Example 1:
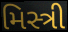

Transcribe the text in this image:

મિસ્ત્રી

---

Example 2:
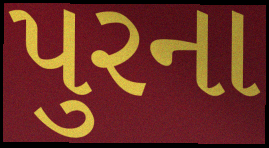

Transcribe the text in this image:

પુરના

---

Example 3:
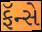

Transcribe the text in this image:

ફૅન્સે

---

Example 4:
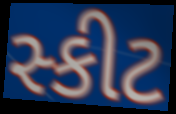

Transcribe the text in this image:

સ્કીટ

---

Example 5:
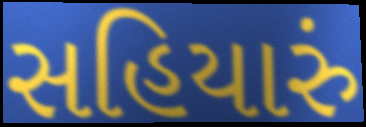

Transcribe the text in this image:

સહિયારું